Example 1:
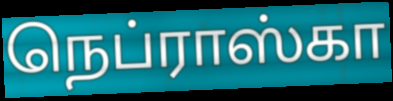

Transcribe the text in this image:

நெப்ராஸ்கா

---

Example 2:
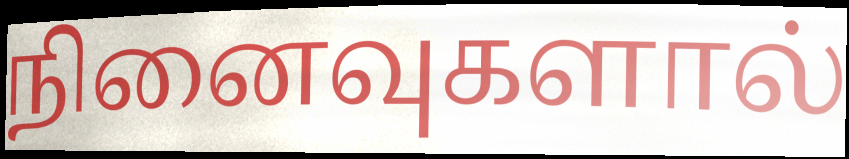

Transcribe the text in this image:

நினைவுகளால்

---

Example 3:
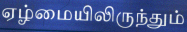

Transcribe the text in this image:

ஏழ்மையிலிருந்தும்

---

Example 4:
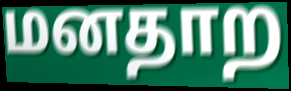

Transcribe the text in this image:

மனதாற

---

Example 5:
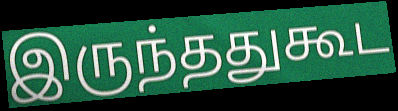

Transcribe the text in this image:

இருந்ததுகூட